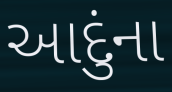
આદુંના